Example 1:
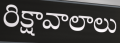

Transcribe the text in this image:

రిక్షావాలాలు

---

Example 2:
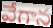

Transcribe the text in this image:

వేగాన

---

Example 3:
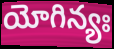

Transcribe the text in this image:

యోగిన్యః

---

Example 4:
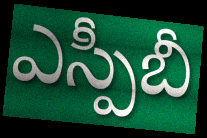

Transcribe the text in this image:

ఎస్పీబీ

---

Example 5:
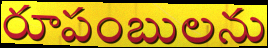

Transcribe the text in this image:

రూపంబులను